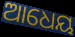
ଆଧେୟ